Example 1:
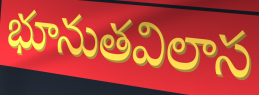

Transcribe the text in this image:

భూనుతవిలాస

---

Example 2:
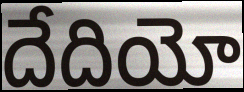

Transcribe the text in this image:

దేదియో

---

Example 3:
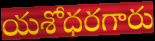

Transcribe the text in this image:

యశోధరగారు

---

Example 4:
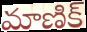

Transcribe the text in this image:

మాణిక్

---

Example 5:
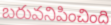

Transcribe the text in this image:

బరువనిపించింది